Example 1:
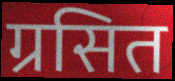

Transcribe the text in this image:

ग्रसित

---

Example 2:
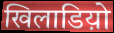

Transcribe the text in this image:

खिलाडिय़ो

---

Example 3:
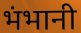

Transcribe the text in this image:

भंभानी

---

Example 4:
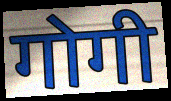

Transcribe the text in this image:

गोगी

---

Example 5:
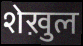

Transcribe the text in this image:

शेख़ुल